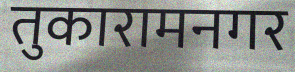
तुकारामनगर